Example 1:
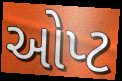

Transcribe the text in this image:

ઓપ્ટ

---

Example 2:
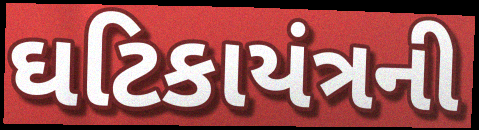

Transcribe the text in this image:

ઘટિકાયંત્રની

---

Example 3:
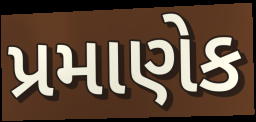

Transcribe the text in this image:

પ્રમાણેક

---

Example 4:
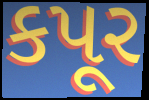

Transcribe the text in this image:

કપૂર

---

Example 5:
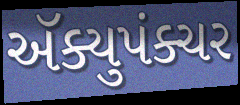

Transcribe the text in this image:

ઍક્યુપંક્ચર